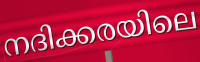
നദിക്കരയിലെ